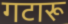
गटारू